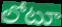
లోటూ